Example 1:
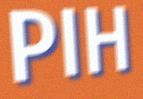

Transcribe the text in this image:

PIH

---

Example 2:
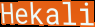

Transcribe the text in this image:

Hekali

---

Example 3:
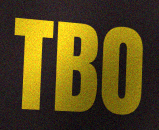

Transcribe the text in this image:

TBO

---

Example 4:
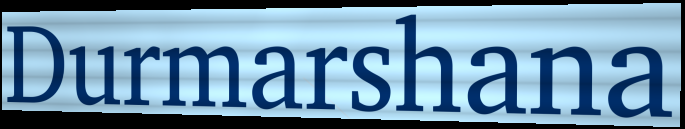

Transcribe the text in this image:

Durmarshana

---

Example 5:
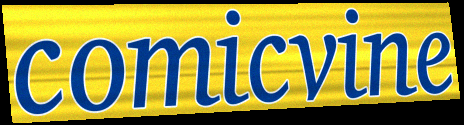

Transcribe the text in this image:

comicvine